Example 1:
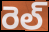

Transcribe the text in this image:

రెల్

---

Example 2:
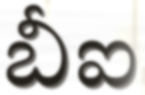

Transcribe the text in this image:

బీఐ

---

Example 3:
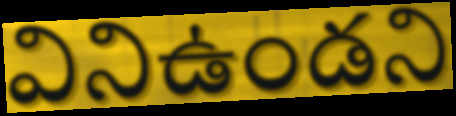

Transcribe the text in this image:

వినిఉండని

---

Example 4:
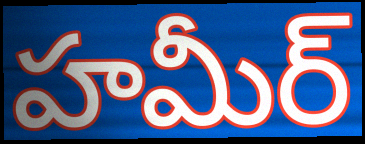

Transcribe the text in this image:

హమీర్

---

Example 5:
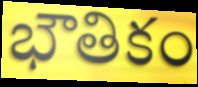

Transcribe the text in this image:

భౌతికం